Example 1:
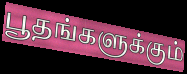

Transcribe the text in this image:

பூதங்களுக்கும்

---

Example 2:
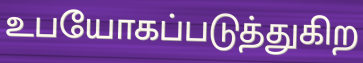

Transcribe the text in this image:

உபயோகப்படுத்துகிற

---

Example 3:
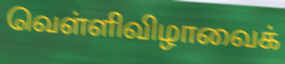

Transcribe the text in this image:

வெள்ளிவிழாவைக்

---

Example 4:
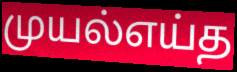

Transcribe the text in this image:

முயல்எய்த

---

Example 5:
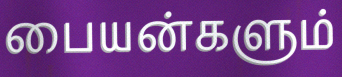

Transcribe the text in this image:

பையன்களும்